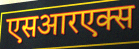
एसआरएक्स